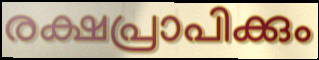
രക്ഷപ്രാപിക്കും